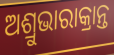
ଅଶ୍ରୁଭାରାକ୍ରାନ୍ତ